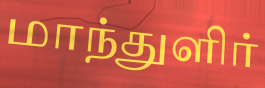
மாந்துளிர்